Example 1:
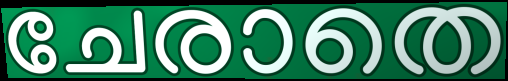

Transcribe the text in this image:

ചേരാതെ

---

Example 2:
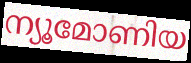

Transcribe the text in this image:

ന്യൂമോണിയ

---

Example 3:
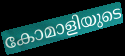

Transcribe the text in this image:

കോമാളിയുടെ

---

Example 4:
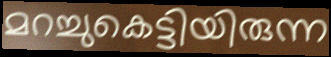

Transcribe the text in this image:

മറച്ചുകെട്ടിയിരുന്ന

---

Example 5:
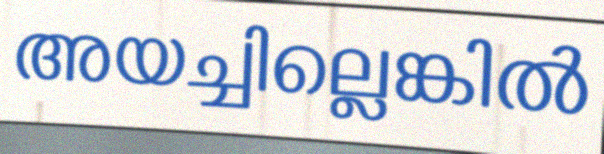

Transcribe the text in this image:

അയച്ചില്ലെങ്കിൽ